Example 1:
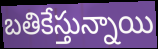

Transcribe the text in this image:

బతికేస్తున్నాయి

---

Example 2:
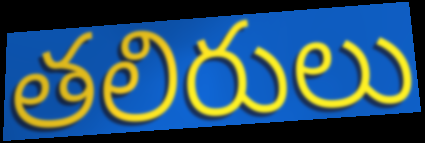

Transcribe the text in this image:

తలిరులు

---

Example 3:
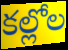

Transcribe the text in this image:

కల్లోల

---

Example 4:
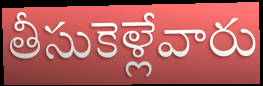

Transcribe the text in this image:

తీసుకెళ్లేవారు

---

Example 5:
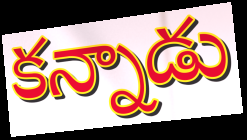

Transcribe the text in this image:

కన్నాడు